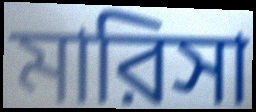
মারিসা